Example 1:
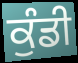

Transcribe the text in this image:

ਕੁੰਡੀ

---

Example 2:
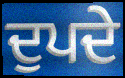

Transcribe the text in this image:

ਦੁਪਦੇ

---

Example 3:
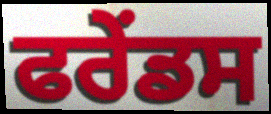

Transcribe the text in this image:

ਫਰੇਂਡਸ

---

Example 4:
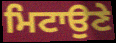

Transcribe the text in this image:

ਮਿਟਾਉਣੇ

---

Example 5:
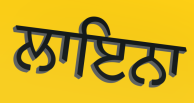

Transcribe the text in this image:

ਲਾਇਨਾ